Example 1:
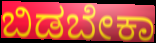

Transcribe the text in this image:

ಬಿಡಬೇಕಾ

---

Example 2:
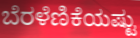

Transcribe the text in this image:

ಬೆರಳೆಣಿಕೆಯಷ್ಟು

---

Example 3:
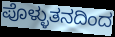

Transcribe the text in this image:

ಪೊಳ್ಳುತನದಿಂದ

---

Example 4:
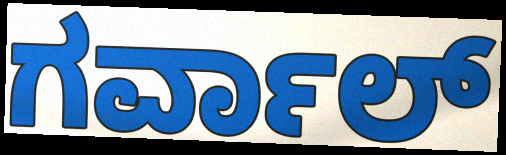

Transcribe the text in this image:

ಗರ್ವಾಲ್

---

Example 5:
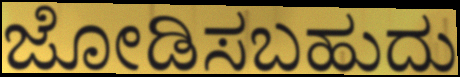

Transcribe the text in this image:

ಜೋಡಿಸಬಹುದು